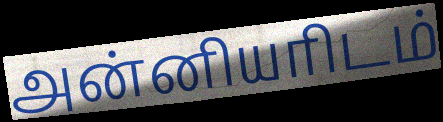
அன்னியரிடம்